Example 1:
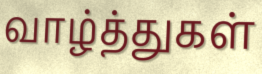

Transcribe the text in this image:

வாழ்த்துகள்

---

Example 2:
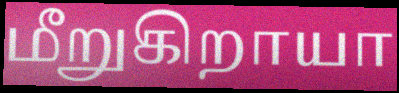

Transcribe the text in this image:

மீறுகிறாயா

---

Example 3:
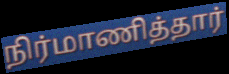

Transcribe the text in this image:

நிர்மாணித்தார்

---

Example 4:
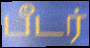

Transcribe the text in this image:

பீடர்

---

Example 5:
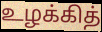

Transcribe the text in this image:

உழக்கித்